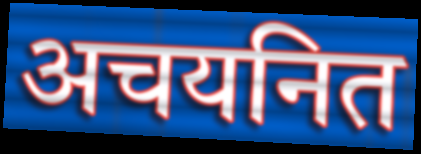
अचयनित